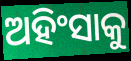
ଅହିଂସାକୁ